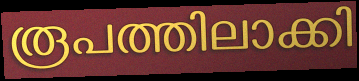
രൂപത്തിലാക്കി